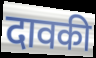
दावकी